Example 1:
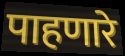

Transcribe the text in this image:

पाहणारे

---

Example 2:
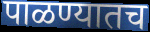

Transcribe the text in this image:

पाळण्यातच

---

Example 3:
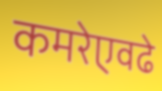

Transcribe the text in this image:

कमरेएवढे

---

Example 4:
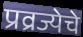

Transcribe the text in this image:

प्रव्रज्येचे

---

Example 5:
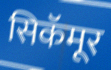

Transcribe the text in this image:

सिकॅमूर